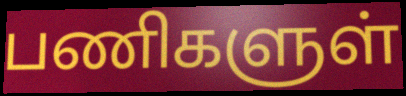
பணிகளுள்